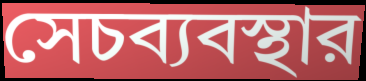
সেচব্যবস্থার